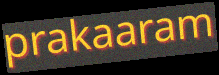
prakaaram